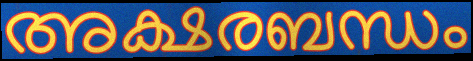
അക്ഷരബന്ധം